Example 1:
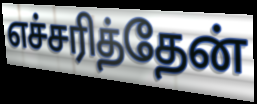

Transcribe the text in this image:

எச்சரித்தேன்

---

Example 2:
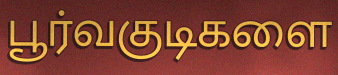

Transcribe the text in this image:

பூர்வகுடிகளை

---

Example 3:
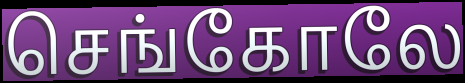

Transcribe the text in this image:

செங்கோலே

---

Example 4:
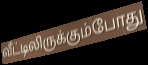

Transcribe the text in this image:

வீட்டிலிருக்கும்போது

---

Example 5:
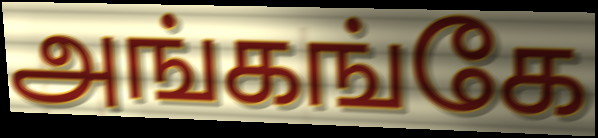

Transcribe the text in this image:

அங்கங்கே